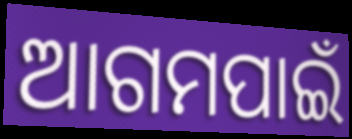
ଆଗମପାଇଁ